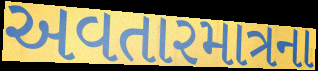
અવતારમાત્રના